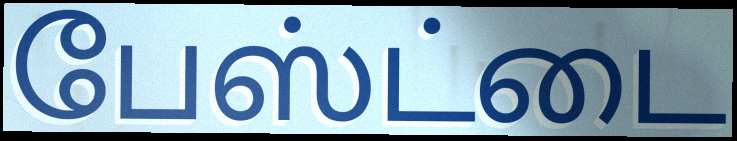
பேஸ்ட்டை